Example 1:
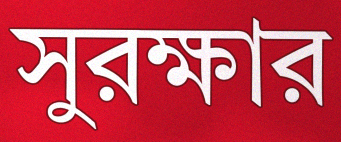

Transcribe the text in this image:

সুরক্ষার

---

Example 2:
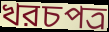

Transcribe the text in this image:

খরচপত্র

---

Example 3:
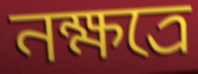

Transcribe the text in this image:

নক্ষত্রে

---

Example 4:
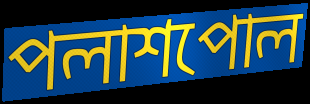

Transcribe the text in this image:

পলাশপোল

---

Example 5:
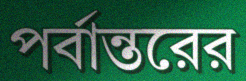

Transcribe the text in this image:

পর্বান্তরের